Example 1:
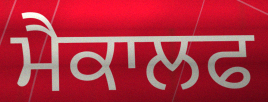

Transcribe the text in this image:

ਮੈਕਾਲਫ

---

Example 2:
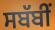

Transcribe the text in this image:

ਸਬੱਬੀਂ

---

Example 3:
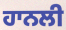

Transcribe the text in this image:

ਹਾਨਲੀ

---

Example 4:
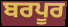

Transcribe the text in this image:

ਬਰਪੂਰ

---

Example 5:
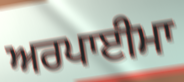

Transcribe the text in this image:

ਅਰਪਾਈਮਾ